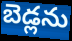
బెడ్లను